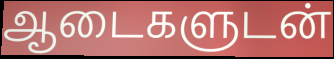
ஆடைகளுடன்